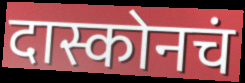
दास्कोनचं